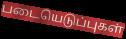
படையெடுப்புகள்